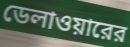
ডেলাওয়ারের